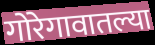
गोरेगावातल्या